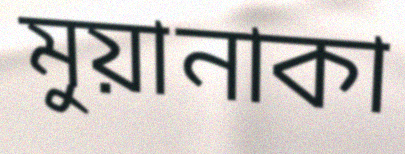
মুয়ানাকা